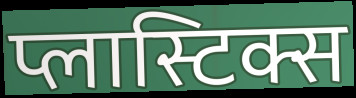
प्लास्टिक्स